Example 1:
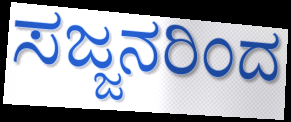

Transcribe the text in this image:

ಸಜ್ಜನರಿಂದ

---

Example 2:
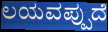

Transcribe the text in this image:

ಲಯವಪ್ಪುದೆ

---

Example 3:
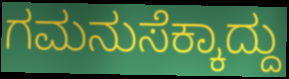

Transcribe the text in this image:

ಗಮನುಸೆಕ್ಕಾದ್ದು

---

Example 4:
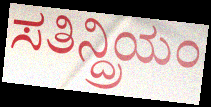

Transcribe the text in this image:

ಸತಿನ್ದ್ರಿಯಂ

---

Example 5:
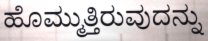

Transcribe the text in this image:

ಹೊಮ್ಮುತ್ತಿರುವುದನ್ನು